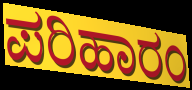
ಪರಿಹಾರಂ